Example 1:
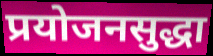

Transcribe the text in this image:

प्रयोजनसुद्धा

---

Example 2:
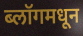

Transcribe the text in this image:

ब्लॉगमधून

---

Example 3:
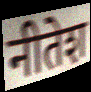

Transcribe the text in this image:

नीतेश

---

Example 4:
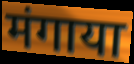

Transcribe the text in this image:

मंगाया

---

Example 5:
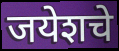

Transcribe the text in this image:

जयेशचे